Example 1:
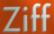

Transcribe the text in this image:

Ziff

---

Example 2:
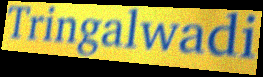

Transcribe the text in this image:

Tringalwadi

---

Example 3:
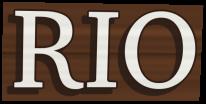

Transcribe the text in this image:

RIO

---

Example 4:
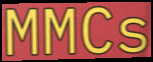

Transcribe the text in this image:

MMCs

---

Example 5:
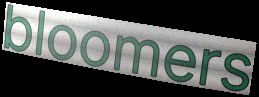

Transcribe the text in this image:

bloomers